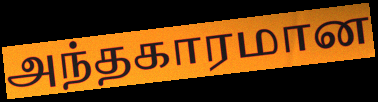
அந்தகாரமான